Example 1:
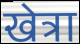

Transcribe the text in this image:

खेत्रा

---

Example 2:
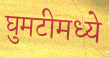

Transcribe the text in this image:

घुमटीमध्ये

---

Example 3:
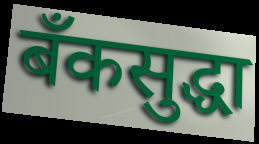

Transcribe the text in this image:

बँकसुद्धा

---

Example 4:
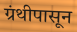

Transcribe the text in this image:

ग्रंथीपासून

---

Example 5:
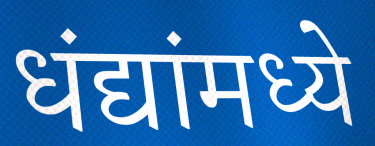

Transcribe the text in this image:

धंद्यांमध्ये